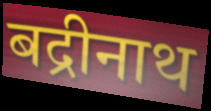
बद्रीनाथ